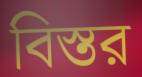
বিস্তর